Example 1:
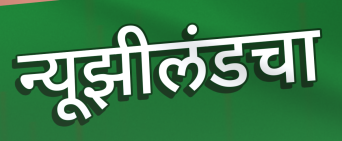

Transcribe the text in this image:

न्यूझीलंडचा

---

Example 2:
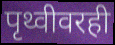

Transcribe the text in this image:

पृथ्वीवरही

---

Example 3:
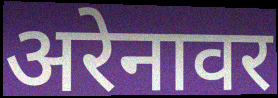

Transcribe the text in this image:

अरेनावर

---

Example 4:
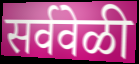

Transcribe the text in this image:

सर्ववेळी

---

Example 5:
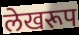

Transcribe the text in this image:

लेखरूप